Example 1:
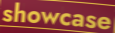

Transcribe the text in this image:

showcase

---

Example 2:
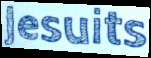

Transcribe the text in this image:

Jesuits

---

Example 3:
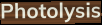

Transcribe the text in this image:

Photolysis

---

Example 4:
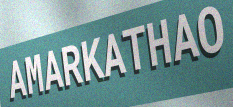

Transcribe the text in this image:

AMARKATHAO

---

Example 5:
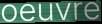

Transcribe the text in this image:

oeuvre